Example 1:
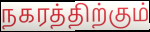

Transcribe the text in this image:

நகரத்திற்கும்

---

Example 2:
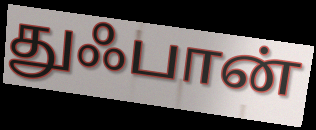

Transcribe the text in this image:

துஃபான்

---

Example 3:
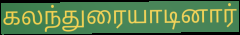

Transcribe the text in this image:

கலந்துரையாடினார்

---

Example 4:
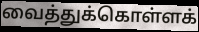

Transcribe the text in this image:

வைத்துக்கொள்ளக்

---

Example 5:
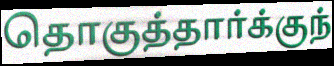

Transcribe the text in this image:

தொகுத்தார்க்குந்